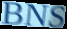
BNS